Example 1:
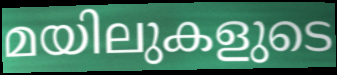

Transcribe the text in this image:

മയിലുകളുടെ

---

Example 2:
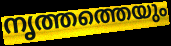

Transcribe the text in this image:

നൃത്തത്തെയും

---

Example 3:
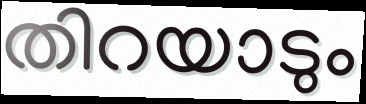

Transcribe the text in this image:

തിറയാടും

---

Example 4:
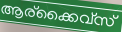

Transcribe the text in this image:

ആര്ക്കൈവ്സ്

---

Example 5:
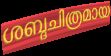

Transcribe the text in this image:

ശബ്ദചിത്രമായ